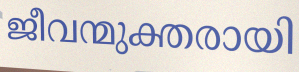
ജീവന്മുക്തരായി